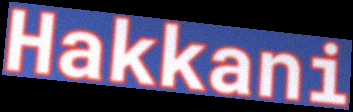
Hakkani